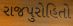
રાજપુરોહિતો